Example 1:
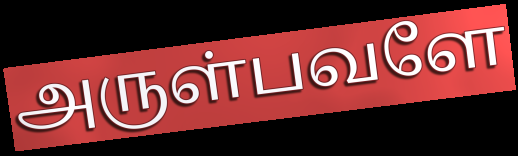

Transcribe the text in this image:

அருள்பவளே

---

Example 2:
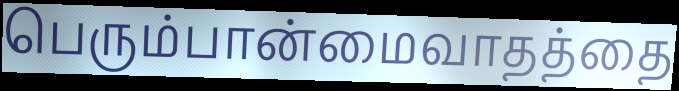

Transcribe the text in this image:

பெரும்பான்மைவாதத்தை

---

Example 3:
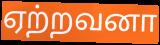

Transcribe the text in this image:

ஏற்றவனா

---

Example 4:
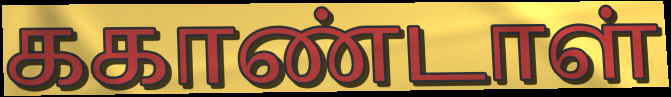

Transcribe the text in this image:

ககாண்டாள்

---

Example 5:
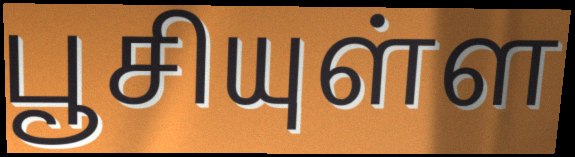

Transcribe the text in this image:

பூசியுள்ள